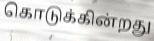
கொடுக்கின்றது